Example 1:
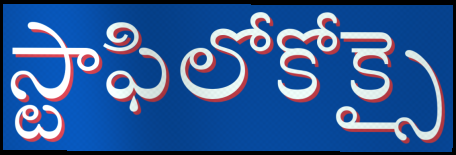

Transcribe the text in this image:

స్టాఫిలోకోక్సై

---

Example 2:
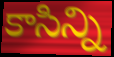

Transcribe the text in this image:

కాసిన్ని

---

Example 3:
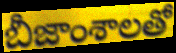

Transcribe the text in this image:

బీజాంశాలతో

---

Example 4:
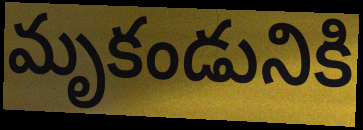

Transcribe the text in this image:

మృకండునికి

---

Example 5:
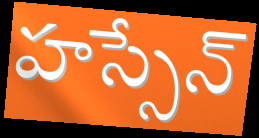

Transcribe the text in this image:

హస్సేన్